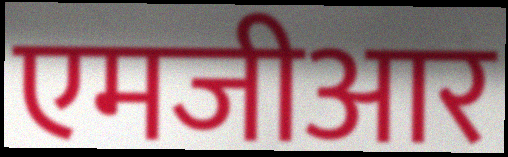
एमजीआर